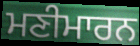
ਮਣੀਮਾਰਨ